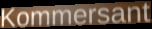
Kommersant